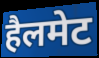
हैलमेट